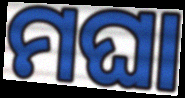
ମଘା